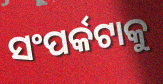
ସଂପର୍କଟାକୁ